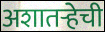
अशातऱ्हेची